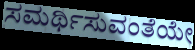
ಸಮರ್ಥಿಸುವಂತೆಯೇ